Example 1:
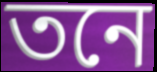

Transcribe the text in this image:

তনে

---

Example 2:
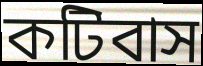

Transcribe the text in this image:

কটিবাস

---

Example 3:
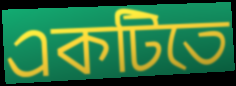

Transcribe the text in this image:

একটিতে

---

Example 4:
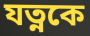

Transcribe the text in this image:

যত্নকে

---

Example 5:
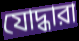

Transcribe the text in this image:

যোদ্ধারা